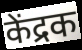
केंद्रक